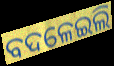
ବଦଳେଇଲି